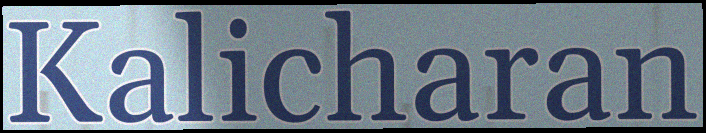
Kalicharan